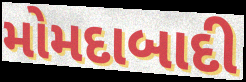
મોમદાબાદી